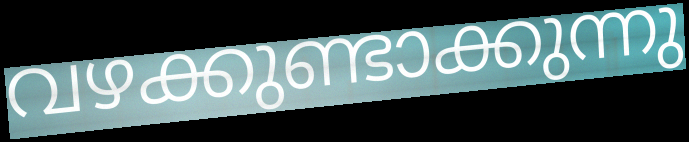
വഴക്കുണ്ടാക്കുന്നു